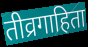
तीव्रगाहिता